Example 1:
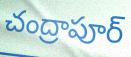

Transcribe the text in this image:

చంద్రాపూర్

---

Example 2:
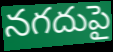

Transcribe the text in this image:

నగదుపై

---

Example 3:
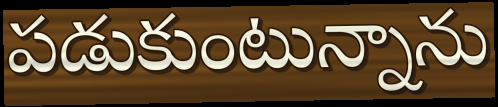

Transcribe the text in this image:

పడుకుంటున్నాను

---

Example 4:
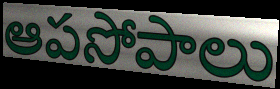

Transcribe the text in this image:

ఆపసోపాలు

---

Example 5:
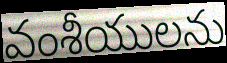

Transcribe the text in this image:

వంశీయులను